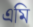
এমি